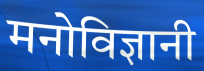
मनोविज्ञानी